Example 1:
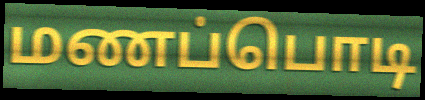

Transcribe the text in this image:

மணப்பொடி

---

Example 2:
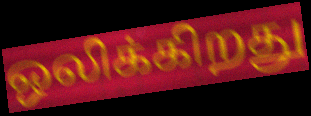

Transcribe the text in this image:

ஒலிக்கிறது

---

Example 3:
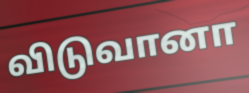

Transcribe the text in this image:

விடுவானா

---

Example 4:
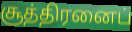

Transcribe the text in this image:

சூத்திரனைப்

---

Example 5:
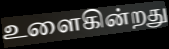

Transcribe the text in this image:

உளைகின்றது